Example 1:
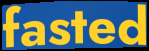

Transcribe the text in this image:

fasted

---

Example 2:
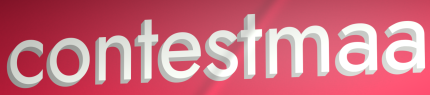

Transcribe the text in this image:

contestmaa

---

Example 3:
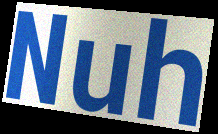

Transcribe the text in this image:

Nuh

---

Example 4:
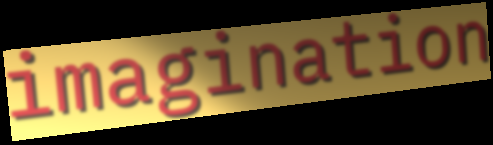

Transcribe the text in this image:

imagination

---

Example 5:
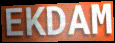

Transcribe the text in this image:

EKDAM